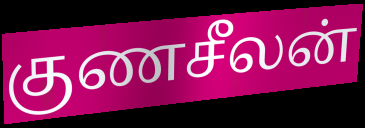
குணசீலன்